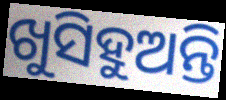
ଖୁସିହୁଅନ୍ତି